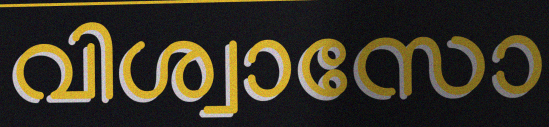
വിശ്വാസോ